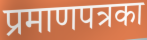
प्रमाणपत्रका